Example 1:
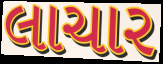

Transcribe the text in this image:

લાચાર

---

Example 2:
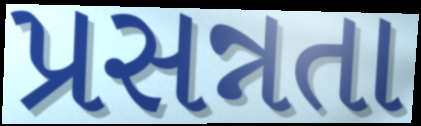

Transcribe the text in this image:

પ્રસન્નતા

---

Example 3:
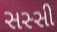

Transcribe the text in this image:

સસ્સી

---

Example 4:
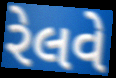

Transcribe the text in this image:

રેલવે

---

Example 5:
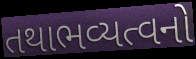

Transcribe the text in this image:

તથાભવ્યત્વનો